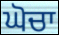
ਘੋਚਾ